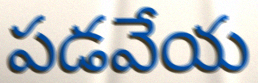
పడవేయ